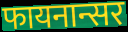
फायनान्सर